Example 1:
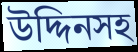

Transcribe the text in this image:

উদ্দিনসহ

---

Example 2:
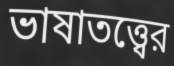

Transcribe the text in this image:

ভাষাতত্ত্বের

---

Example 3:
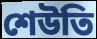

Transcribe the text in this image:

শেউতি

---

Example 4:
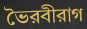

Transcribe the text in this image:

ভৈরবীরাগ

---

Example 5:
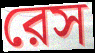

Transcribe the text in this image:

রেস